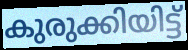
കുരുക്കിയിട്ട്